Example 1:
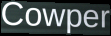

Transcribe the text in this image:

Cowper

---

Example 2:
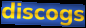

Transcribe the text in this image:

discogs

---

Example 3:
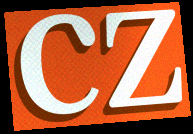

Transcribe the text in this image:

cz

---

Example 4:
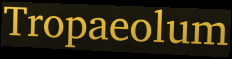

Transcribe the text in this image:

Tropaeolum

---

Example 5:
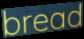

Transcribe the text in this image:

bread